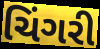
ચિંગરી